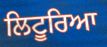
ਲਿਟੂਰਿਆ